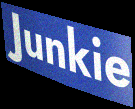
Junkie